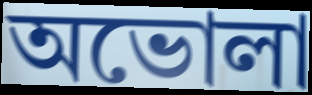
অভোলা